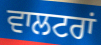
ਵਾਲਟਰਾਂ